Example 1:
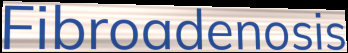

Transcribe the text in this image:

Fibroadenosis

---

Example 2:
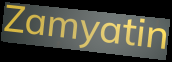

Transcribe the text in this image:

Zamyatin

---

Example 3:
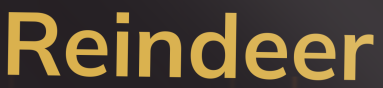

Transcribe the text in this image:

Reindeer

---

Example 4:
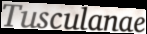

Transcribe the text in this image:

Tusculanae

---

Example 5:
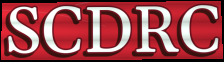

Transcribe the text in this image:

SCDRC